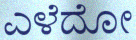
ಎಳೆದೋ